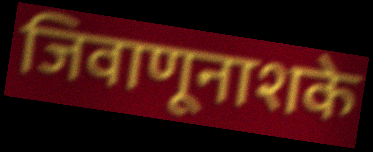
जिवाणूनाशके